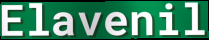
Elavenil